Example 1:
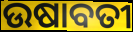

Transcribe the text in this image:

ଉଷାବତୀ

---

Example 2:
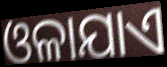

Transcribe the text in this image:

ଓଳାଯାଏ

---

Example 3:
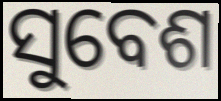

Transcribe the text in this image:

ସୁବେଶ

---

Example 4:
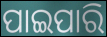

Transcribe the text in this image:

ପାଇପାରି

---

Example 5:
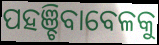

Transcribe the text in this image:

ପହଞ୍ଚିବାବେଳକୁ